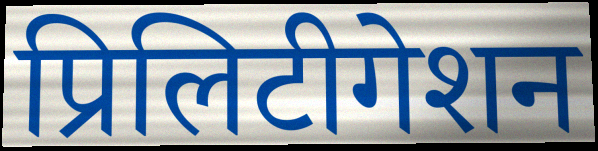
प्रिलिटीगेशन